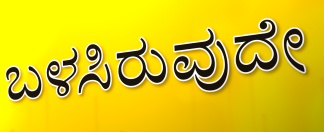
ಬಳಸಿರುವುದೇ